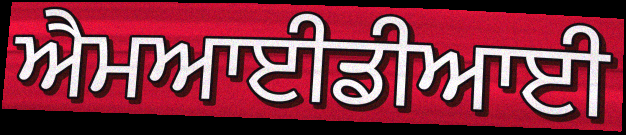
ਐਮਆਈਡੀਆਈ